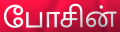
போசின்